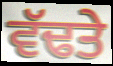
ਵੱਢਤੇ